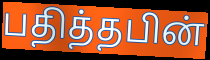
பதித்தபின்